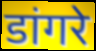
डांगरे